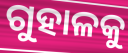
ଗୁହାଳକୁ